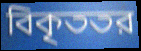
বিকৃততর